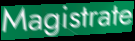
Magistrate